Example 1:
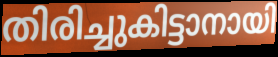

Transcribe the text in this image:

തിരിച്ചുകിട്ടാനായി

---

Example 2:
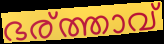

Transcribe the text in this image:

ഭര്ത്താവ്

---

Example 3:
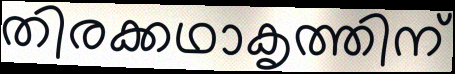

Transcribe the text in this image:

തിരക്കഥാകൃത്തിന്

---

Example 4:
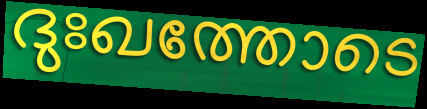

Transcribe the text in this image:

ദുഃഖത്തോടെ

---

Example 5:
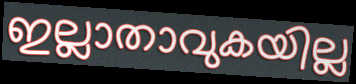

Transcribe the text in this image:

ഇല്ലാതാവുകയില്ല